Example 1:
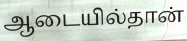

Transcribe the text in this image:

ஆடையில்தான்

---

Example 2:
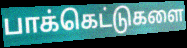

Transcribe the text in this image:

பாக்கெட்டுகளை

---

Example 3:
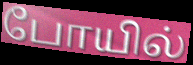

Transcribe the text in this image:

போயில்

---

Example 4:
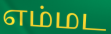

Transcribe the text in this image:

எம்மட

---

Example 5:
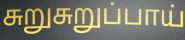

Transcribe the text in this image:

சுறுசுறுப்பாய்